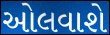
ઓલવાશે